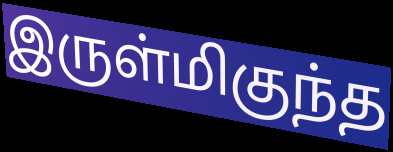
இருள்மிகுந்த